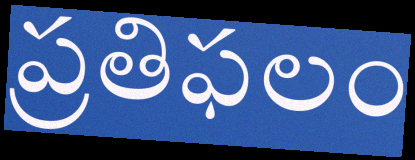
ప్రతిఫలం